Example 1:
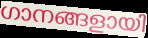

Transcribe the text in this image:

ഗാനങ്ങളായി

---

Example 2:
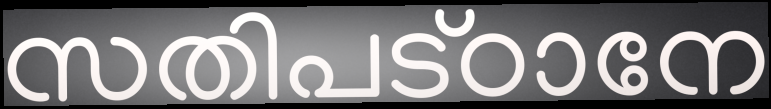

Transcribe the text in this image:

സതിപട്ഠാനേ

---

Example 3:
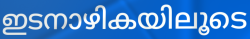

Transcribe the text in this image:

ഇടനാഴികയിലൂടെ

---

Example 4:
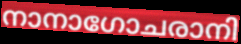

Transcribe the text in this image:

നാനാഗോചരാനി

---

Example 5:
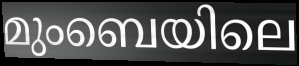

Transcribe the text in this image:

മുംബെയിലെ